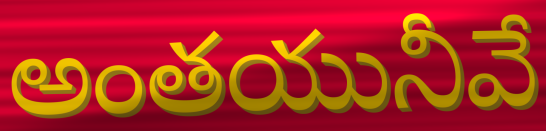
అంతయునీవే